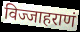
विज्जाहराणं